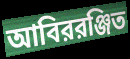
আবিররঞ্জিত